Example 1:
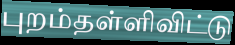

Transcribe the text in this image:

புறம்தள்ளிவிட்டு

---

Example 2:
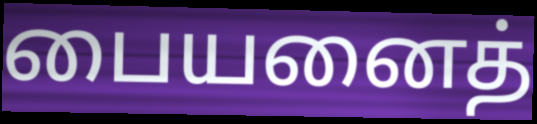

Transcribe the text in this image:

பையனைத்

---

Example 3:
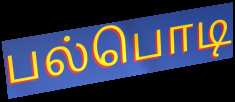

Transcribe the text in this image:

பல்பொடி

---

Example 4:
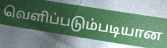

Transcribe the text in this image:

வெளிப்படும்படியான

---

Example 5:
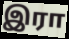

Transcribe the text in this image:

இரா